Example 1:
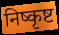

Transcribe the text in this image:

निष्कृष्ट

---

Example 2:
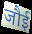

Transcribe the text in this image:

जौई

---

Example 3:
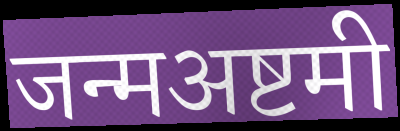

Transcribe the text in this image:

जन्मअष्टमी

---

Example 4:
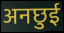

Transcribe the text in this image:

अनछुई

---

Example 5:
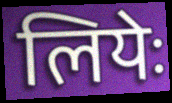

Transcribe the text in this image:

लियेः